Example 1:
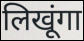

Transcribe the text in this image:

लिखूंगा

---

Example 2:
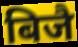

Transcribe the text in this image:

बिजै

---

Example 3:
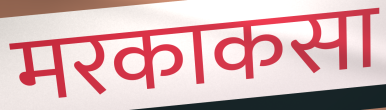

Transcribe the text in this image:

मरकाकसा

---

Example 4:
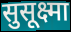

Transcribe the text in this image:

सुसूक्ष्मा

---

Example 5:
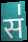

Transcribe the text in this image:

स॑